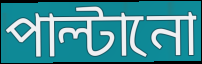
পাল্টানো